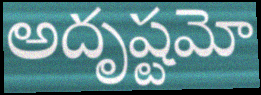
అదృష్టమో